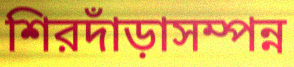
শিরদাঁড়াসম্পন্ন